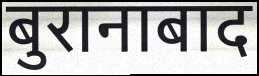
बुरानाबाद